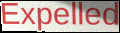
Expelled